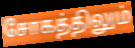
சோகத்திலும்